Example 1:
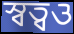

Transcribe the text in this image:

স্বত্বও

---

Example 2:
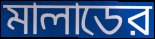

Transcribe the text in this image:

মালাডের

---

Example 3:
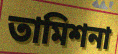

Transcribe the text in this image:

তামিশনা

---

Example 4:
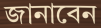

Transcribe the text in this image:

জানাবেন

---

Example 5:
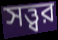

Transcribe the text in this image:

সত্ত্বর